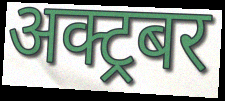
अक्ट्रबर